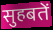
सुहबतें